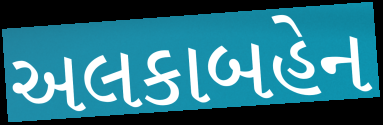
અલકાબહેન